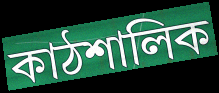
কাঠশালিক